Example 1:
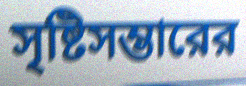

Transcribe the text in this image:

সৃষ্টিসম্ভারের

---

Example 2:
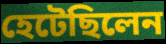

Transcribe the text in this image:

হেটেছিলেন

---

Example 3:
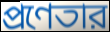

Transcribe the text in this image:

প্রণেতার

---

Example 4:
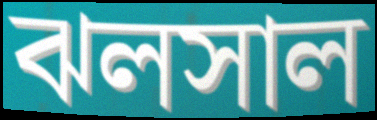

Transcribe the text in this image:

ঝলসাল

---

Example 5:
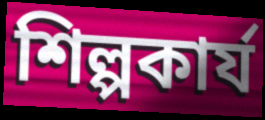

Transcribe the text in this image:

শিল্পকার্য